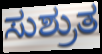
ಸುಶ್ರುತ